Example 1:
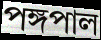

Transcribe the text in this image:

পঙ্গপাল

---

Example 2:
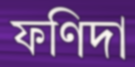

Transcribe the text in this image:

ফণিদা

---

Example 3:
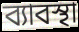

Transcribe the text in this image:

ব্যাবস্থা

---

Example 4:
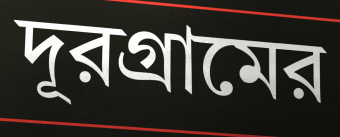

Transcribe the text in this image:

দূরগ্রামের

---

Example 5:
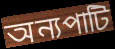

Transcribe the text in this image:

অন্যপাটি